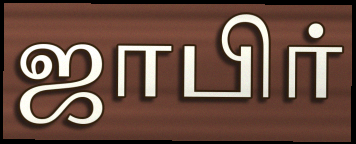
ஜாபிர்